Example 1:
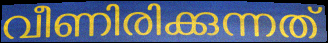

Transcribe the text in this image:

വീണിരിക്കുന്നത്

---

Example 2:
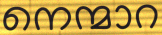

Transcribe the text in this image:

നെന്മാറ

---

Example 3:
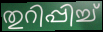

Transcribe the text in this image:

തുറിപ്പിച്ച്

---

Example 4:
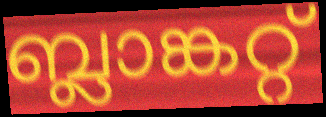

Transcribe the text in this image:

ബ്ലാങ്കറ്റ്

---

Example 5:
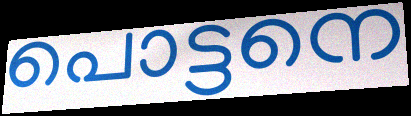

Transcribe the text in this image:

പൊട്ടനെ